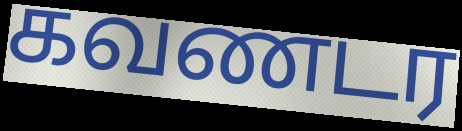
கவணடர